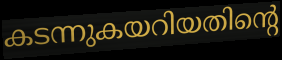
കടന്നുകയറിയതിന്റെ